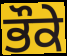
ਭੌਕੇ